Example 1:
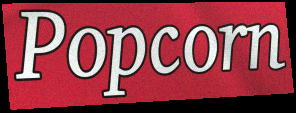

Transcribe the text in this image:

Popcorn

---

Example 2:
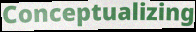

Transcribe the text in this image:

Conceptualizing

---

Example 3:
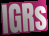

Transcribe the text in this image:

IGRs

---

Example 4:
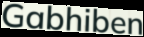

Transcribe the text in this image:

Gabhiben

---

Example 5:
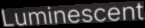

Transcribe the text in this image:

Luminescent